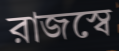
রাজস্বে